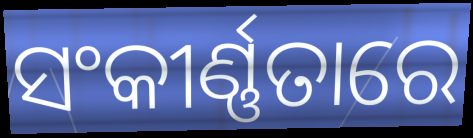
ସଂକୀର୍ଣ୍ଣତାରେ